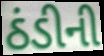
ઠંડીની